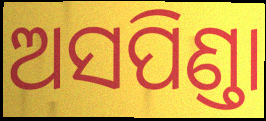
ଅସପିଣ୍ଡା